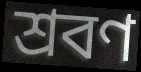
শ্রবণ